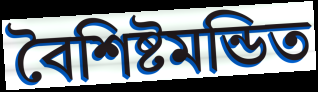
বৈশিষ্টমন্ডিত